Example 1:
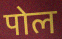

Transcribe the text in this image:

पोल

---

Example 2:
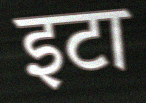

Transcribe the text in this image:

इटा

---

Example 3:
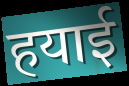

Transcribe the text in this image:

हयाई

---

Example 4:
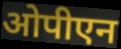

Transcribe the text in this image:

ओपीएन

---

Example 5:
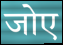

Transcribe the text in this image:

जोए